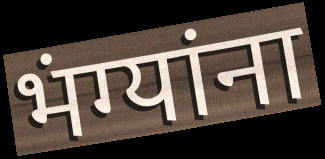
भंग्यांना